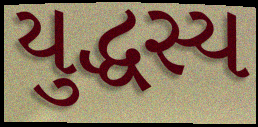
યુદ્ધસ્ય